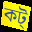
কট্